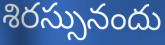
శిరస్సునందు